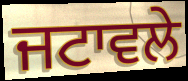
ਜਟਾਵਲੇ